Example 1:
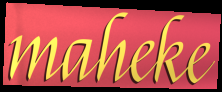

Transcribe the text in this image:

maheke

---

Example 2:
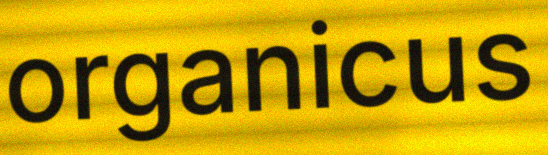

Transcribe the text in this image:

organicus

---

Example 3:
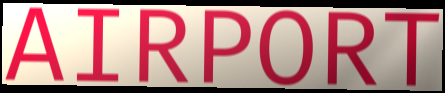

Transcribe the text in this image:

AIRPORT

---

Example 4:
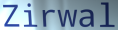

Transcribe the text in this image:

Zirwal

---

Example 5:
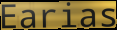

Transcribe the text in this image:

Earias